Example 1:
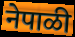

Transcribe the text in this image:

नेपाळी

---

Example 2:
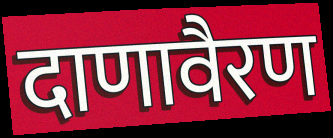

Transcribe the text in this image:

दाणावैरण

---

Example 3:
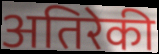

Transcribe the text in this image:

अतिरेकी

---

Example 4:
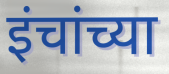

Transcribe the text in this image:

इंचांच्या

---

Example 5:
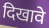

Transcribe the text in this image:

दिखावे